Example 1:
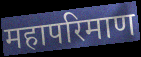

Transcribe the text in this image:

महापरिमाण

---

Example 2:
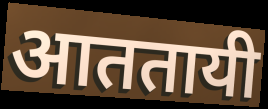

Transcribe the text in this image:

आततायी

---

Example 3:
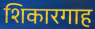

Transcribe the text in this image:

शिकारगाह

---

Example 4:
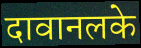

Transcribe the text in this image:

दावानलके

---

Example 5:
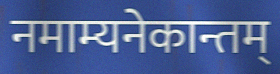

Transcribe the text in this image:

नमाम्यनेकान्तम्